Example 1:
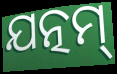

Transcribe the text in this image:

ଯତ୍ନମ୍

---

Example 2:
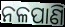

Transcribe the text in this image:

ନଳପାଣି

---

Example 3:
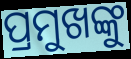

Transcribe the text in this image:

ପ୍ରମୁଖଙ୍କୁ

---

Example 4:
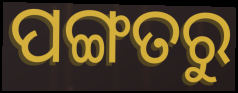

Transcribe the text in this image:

ପଙ୍ଗତରୁ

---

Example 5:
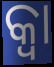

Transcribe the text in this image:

କ୍ଵା